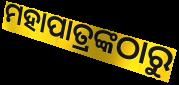
ମହାପାତ୍ରଙ୍କଠାରୁ